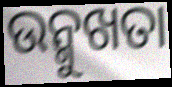
ଉନ୍ମୁଖତା